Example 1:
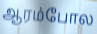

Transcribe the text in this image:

ஆரம்போல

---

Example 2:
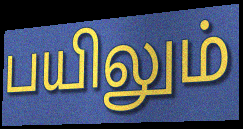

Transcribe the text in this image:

பயிலும்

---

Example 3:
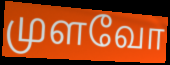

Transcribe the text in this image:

முளவோ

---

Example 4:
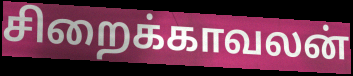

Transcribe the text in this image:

சிறைக்காவலன்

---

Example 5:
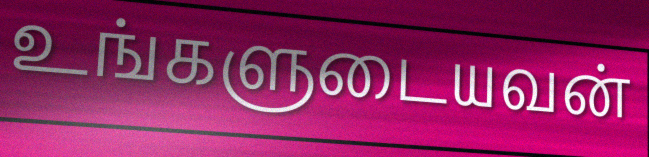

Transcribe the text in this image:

உங்களுடையவன்